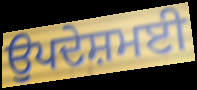
ਉਪਦੇਸ਼ਮਈ